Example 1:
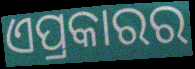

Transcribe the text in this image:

ଏପ୍ରକାରର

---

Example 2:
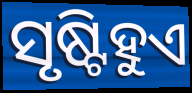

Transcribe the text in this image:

ସୃଷ୍ଟିହୁଏ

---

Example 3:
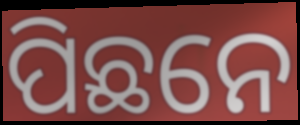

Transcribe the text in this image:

ପିଛନେ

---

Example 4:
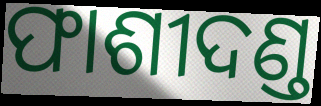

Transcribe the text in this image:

ଫାଶୀଦଣ୍ଡ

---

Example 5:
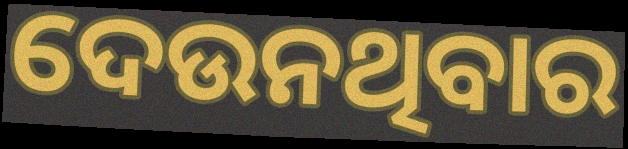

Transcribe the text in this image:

ଦେଉନଥିବାର